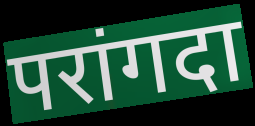
परांगदा